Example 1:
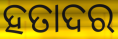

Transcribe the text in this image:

ହତାଦର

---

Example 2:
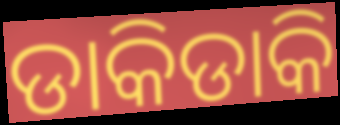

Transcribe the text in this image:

ଡାକିଡାକି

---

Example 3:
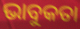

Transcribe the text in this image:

ଭାବୁକତା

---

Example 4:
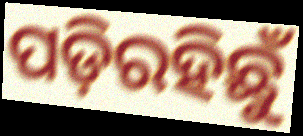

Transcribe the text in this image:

ପଡ଼ିରହିଛୁଁ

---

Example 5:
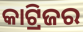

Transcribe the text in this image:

କାଟ୍ରିଜର